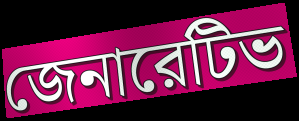
জেনারেটিভ